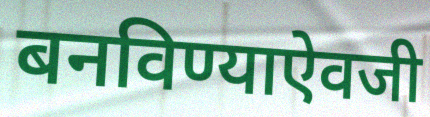
बनविण्याऐवजी